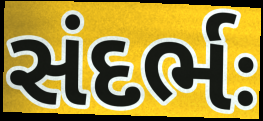
સંદર્ભઃ